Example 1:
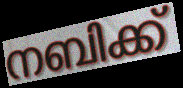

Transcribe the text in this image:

നബിക്ക്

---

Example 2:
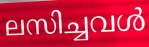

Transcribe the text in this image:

ലസിച്ചവൾ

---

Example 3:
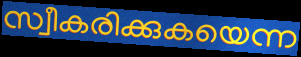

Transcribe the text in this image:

സ്വീകരിക്കുകയെന്ന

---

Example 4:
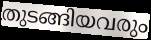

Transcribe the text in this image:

തുടങ്ങിയവരും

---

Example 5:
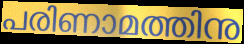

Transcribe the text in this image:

പരിണാമത്തിനു